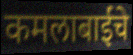
कमलाबाईंचे